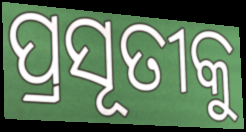
ପ୍ରସୂତୀକୁ